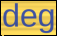
deg